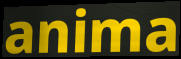
anima